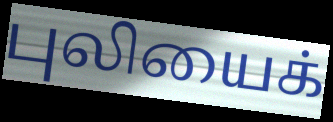
புலியைக்